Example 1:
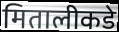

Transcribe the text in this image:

मितालीकडे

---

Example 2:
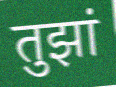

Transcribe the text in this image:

तुझां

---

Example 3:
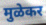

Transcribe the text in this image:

मुळेकर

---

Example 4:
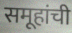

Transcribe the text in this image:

समूहांची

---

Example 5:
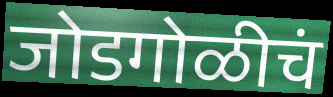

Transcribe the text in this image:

जोडगोळीचं